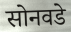
सोनवडे